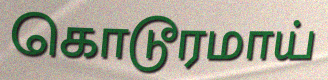
கொடூரமாய்